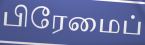
பிரேமைப்